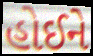
હોઈને